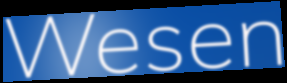
Wesen